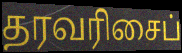
தரவரிசைப்